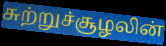
சுற்றுச்சூழலின்